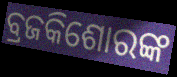
ବ୍ରଜକିଶୋରଙ୍କ